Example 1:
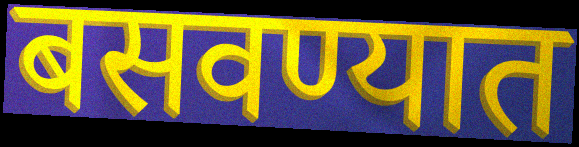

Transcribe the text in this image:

बसवण्यात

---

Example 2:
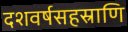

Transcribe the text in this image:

दशवर्षसहस्राणि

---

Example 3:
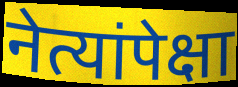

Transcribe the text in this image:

नेत्यांपेक्षा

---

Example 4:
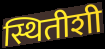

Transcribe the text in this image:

स्थितीशी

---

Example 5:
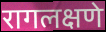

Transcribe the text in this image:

रागलक्षणे